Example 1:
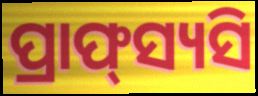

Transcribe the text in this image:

ପ୍ରାଫ୍‌ସ୍ୟସି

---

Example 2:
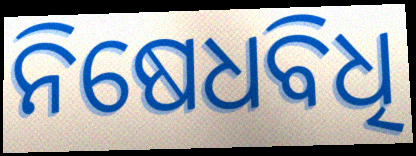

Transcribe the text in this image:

ନିଷେଧବିଧି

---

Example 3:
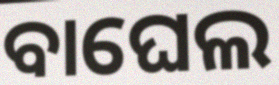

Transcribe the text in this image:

ବାଘେଲ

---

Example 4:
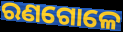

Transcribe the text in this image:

ରଣଗୋଳେ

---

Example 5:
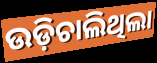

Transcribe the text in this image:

ଉଡ଼ିଚାଲିଥିଲା